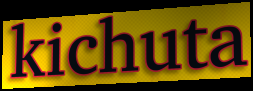
kichuta